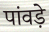
पांवड़े